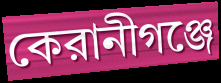
কেরানীগঞ্জে